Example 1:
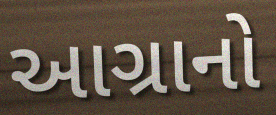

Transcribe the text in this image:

આગ્રાનો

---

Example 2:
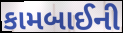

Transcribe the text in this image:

કામબાઈની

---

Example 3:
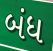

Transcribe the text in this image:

બંધ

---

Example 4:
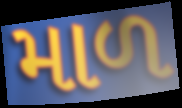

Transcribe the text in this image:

માળ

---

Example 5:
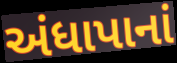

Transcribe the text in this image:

અંધાપાનાં